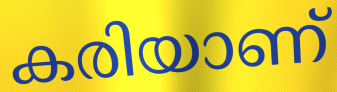
കരിയാണ്